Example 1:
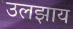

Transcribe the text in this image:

उलझाय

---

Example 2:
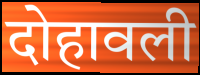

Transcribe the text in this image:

दोहावली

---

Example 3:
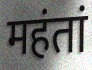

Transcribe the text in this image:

महंतां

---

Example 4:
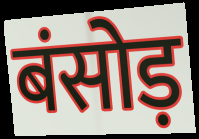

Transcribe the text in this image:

बंसोड़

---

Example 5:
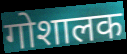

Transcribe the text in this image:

गोशालक